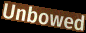
Unbowed